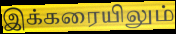
இக்கரையிலும்